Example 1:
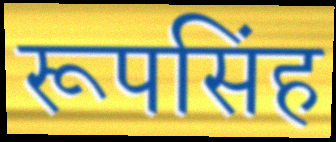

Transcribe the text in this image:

रूपसिंह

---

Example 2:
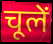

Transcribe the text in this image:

चूलें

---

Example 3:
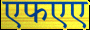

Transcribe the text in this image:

एफएए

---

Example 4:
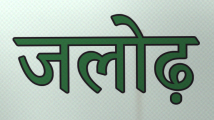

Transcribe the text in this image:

जलोढ़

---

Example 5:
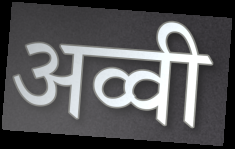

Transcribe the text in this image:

अव्वी